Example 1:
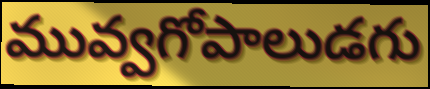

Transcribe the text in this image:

మువ్వగోపాలుడగు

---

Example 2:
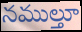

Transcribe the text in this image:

నముల్తూ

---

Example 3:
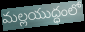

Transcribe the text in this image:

మల్లయుద్ధంలో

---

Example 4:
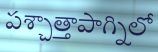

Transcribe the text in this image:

పశ్చాత్తాపాగ్నిలో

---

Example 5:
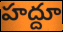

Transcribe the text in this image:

హద్దూ